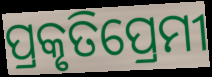
ପ୍ରକୃତିପ୍ରେମୀ